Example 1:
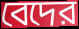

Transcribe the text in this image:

বেদের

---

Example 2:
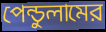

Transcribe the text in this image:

পেন্ডুলামের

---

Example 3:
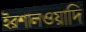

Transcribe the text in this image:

ইরশালওয়াদি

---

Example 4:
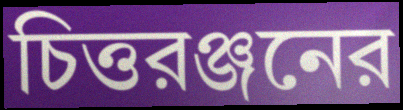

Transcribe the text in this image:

চিত্তরঞ্জনের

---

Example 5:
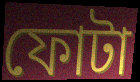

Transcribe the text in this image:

ফোটা